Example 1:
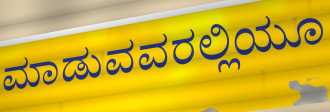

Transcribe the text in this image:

ಮಾಡುವವರಲ್ಲಿಯೂ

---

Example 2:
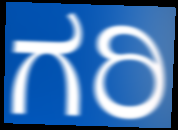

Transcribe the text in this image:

ಗರಿ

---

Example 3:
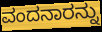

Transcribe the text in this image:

ವಂದನಾರನ್ನು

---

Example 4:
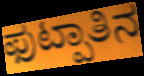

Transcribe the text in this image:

ಫುಟ್ಪಾತಿನ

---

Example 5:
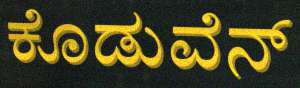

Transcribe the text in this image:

ಕೊಡುವೆನ್